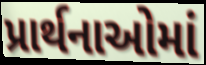
પ્રાર્થનાઓમાં